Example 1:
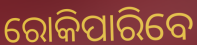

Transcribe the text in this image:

ରୋକିପାରିବେ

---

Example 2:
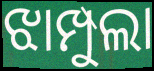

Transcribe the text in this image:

ଝାମ୍ପୁଲା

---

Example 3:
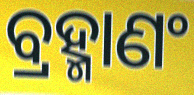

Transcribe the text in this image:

ବ୍ରହ୍ମାଣଂ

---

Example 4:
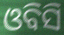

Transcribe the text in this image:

ଓବିସି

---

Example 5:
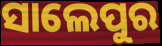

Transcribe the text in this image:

ସାଲେପୁର